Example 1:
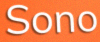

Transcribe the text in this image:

Sono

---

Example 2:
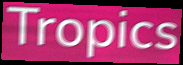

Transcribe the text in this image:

Tropics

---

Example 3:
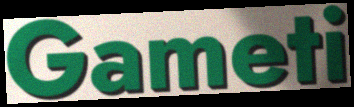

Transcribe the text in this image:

Gameti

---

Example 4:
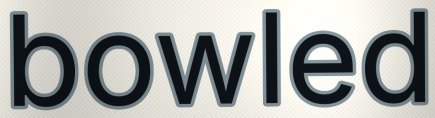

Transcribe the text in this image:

bowled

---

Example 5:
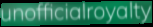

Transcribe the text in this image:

unofficialroyalty